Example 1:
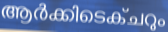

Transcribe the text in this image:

ആർക്കിടെക്ചറും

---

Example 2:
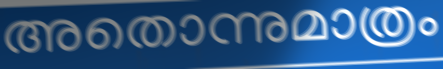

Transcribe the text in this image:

അതൊന്നുമാത്രം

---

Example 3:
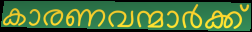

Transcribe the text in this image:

കാരണവന്മാർക്ക്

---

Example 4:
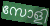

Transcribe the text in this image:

സോളി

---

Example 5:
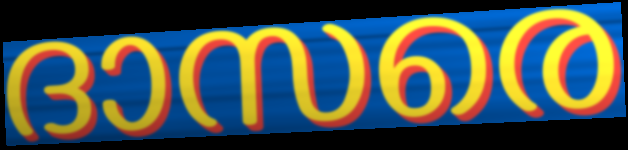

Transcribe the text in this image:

ദാസരെ